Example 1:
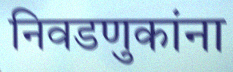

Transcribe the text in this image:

निवडणुकांना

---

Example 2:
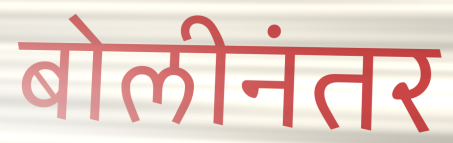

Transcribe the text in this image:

बोलीनंतर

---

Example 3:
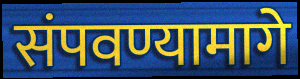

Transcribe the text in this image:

संपवण्यामागे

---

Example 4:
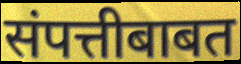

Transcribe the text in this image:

संपत्तीबाबत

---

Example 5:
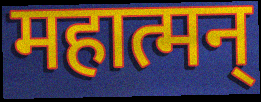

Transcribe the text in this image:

महात्मन्